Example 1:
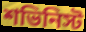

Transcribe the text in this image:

শভিনিস্ট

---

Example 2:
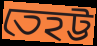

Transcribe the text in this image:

তেহট্ট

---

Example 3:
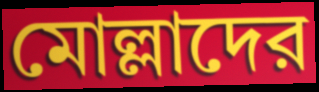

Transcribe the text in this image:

মোল্লাদের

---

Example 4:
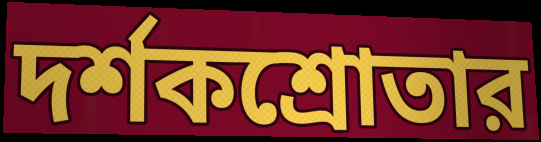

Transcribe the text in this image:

দর্শকশ্রোতার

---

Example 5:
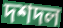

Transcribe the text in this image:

দশদল